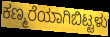
ಕಣ್ಮರೆಯಾಗಿಬಿಟ್ಟಳು